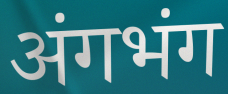
अंगभंग